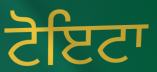
ਟੋਇਟਾ